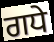
ਗਧੇ